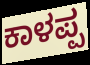
ಕಾಳಪ್ಪ